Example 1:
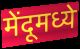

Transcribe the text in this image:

मेंदूमध्ये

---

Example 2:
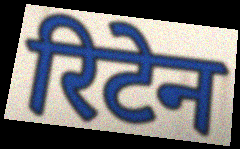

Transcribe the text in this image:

रिटेन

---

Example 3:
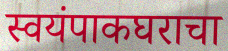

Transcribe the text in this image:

स्वयंपाकघराचा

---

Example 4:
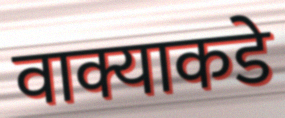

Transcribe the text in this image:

वाक्याकडे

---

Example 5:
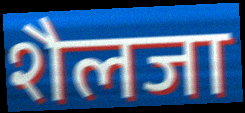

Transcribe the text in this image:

शैलजा